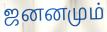
ஜனனமும்